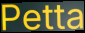
Petta